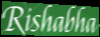
Rishabha